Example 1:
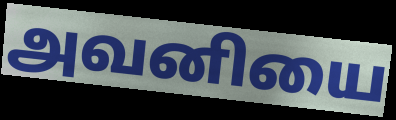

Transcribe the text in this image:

அவனியை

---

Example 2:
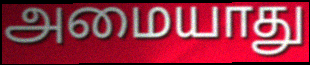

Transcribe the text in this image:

அமையாது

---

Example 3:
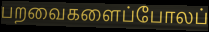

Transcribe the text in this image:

பறவைகளைப்போலப்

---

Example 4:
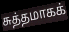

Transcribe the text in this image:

சுத்தமாகக்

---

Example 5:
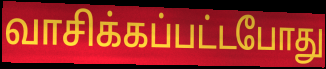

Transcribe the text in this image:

வாசிக்கப்பட்டபோது